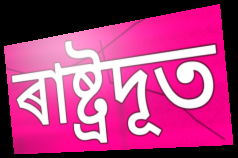
ৰাষ্ট্ৰদূত